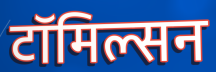
टॉमिल्सन